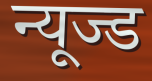
न्यूज्ड